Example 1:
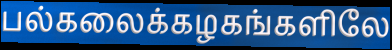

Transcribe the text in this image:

பல்கலைக்கழகங்களிலே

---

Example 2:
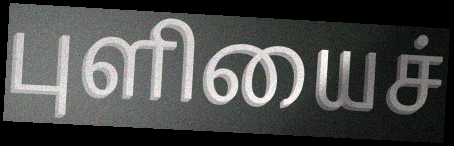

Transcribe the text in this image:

புளியைச்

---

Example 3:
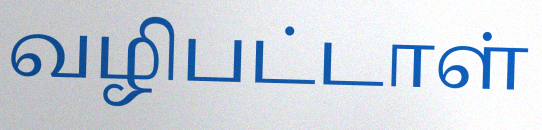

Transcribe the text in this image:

வழிபட்டாள்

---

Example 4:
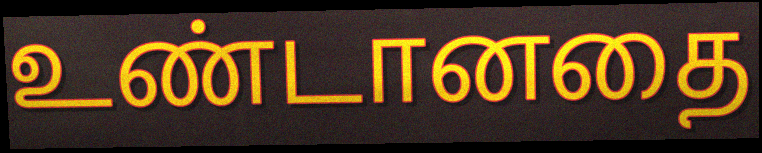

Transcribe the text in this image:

உண்டானதை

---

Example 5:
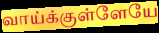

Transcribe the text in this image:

வாய்க்குள்ளேயே